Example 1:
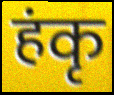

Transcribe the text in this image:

हंकृ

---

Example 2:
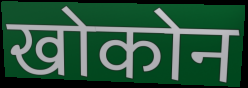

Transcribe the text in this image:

खोकोन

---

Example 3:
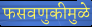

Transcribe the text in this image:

फसवणुकीमुळे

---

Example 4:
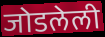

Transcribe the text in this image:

जोडलेली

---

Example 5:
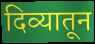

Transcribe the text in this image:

दिव्यातून